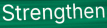
Strengthen